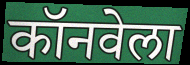
कॉनवेला